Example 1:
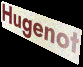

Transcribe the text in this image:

Hugenot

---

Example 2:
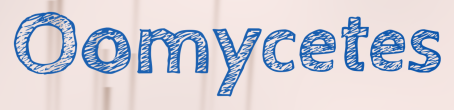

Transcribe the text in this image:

Oomycetes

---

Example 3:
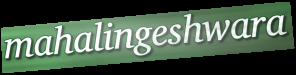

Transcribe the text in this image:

mahalingeshwara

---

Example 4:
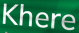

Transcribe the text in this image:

Khere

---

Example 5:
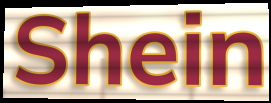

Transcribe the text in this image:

Shein